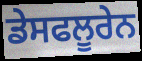
ਡੇਸਫਲੂਰੇਨ